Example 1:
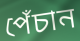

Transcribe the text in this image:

পেঁচান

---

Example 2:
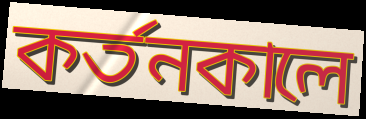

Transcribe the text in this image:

কর্তনকালে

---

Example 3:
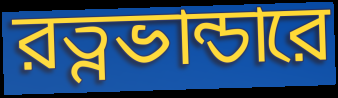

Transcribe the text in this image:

রত্নভান্ডারে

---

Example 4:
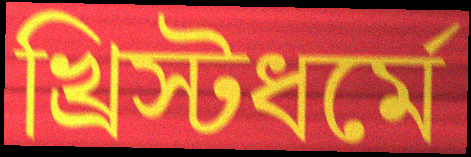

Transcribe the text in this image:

খ্রিস্টধর্মে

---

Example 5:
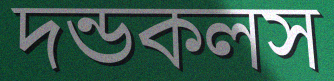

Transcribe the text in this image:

দন্ডকলস